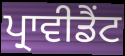
ਪ੍ਰਾਵੀਡੈਂਟ